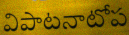
విపాటనాటోప